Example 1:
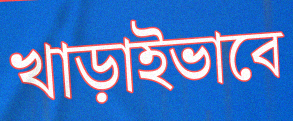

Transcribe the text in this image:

খাড়াইভাবে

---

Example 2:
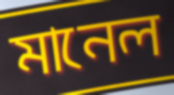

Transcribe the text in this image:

মানেল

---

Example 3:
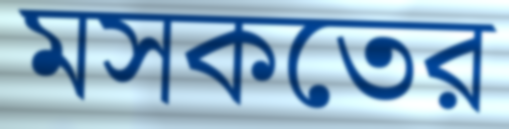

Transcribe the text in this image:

মসকতের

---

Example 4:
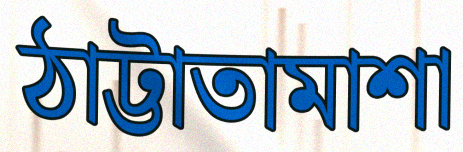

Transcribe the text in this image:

ঠাট্টাতামাশা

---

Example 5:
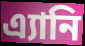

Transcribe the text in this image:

এ্যানি